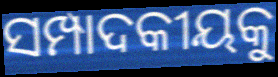
ସମ୍ପାଦକୀୟକୁ